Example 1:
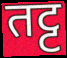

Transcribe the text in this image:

तट्ट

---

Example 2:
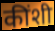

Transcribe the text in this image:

कींशी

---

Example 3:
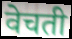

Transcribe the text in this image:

वेचती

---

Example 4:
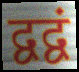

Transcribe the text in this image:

द्वद्वं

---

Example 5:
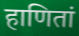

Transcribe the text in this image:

हाणितां